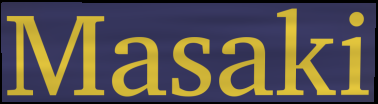
Masaki